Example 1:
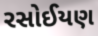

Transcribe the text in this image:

રસોઈયણ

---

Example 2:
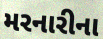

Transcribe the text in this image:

મરનારીના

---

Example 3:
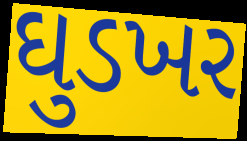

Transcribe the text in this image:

ઘુડખર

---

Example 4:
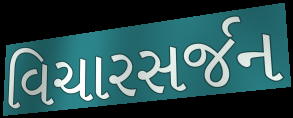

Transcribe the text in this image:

વિચારસર્જન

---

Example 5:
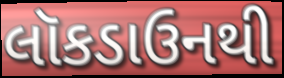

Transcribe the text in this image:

લૉકડાઉનથી